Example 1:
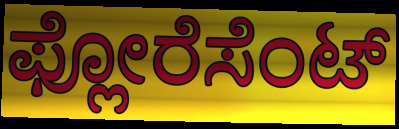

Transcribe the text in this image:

ಫ್ಲೋರೆಸೆಂಟ್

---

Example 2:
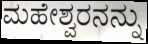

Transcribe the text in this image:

ಮಹೇಶ್ವರನನ್ನು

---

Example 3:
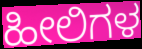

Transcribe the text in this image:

ಹೀಲಿಗಳ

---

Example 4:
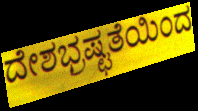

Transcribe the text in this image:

ದೇಶಭ್ರಷ್ಟತೆಯಿಂದ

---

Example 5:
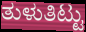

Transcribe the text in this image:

ತುಳುತಿಟ್ಟು